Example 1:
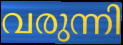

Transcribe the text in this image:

വരുന്നി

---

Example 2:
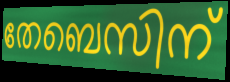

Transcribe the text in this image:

തേബെസിന്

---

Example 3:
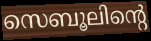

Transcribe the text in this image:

സെബൂലിന്റെ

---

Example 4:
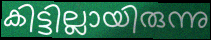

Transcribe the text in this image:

കിട്ടില്ലായിരുന്നു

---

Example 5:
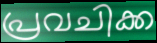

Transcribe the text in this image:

പ്രവചിക്ക